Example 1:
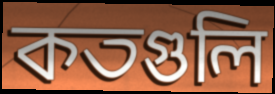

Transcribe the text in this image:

কতগুলি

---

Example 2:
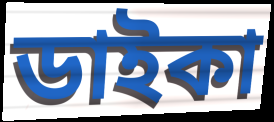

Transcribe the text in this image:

ডাইকা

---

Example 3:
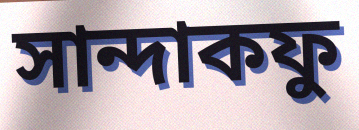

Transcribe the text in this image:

সান্দাকফু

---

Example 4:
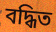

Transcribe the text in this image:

বদ্ধিত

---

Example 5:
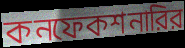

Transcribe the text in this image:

কনফেকশনারির